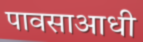
पावसाआधी